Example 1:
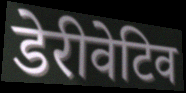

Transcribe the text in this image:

डेरीवेटिव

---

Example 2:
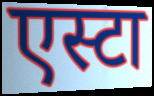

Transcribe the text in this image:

एस्टा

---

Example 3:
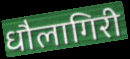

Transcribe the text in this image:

धौलागिरी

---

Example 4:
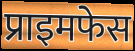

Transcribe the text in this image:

प्राइमफेस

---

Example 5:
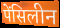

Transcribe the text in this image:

पेंसिलीन